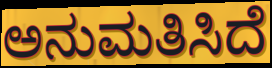
ಅನುಮತಿಸಿದೆ